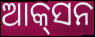
ଆକ୍‌ସନ